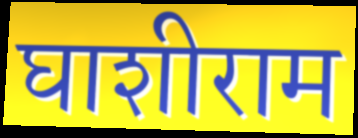
घाशीराम